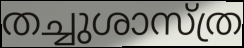
തച്ചുശാസ്ത്ര